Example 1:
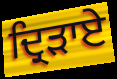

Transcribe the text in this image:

ਦ੍ਰਿੜਾਏ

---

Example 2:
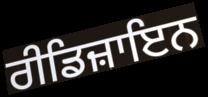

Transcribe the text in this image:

ਰੀਡਿਜ਼ਾਇਨ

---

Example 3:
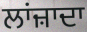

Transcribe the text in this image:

ਲਾਂਜ਼ਾਦਾ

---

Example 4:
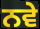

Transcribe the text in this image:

ਨਵੇ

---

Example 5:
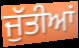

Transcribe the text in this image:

ਜੁੱਤੀਆਂ